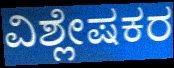
ವಿಶ್ಲೇಷಕರ